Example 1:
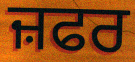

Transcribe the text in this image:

ਜ਼ਫਰ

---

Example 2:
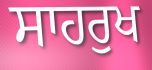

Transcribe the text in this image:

ਸਾਹਰੁਖ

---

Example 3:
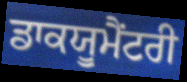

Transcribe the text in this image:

ਡਾਕਯੂਮੈਂਟਰੀ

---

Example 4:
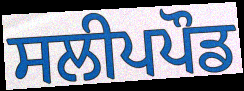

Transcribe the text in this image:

ਸਲੀਪਪੌਡ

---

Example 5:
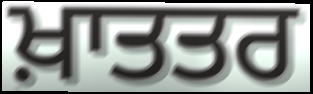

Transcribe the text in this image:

ਖ਼ਾਤਤਰ